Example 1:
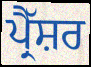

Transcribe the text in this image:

ਪ੍ਰੈੱਸ਼ਰ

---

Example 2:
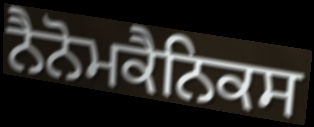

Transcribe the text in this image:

ਨੈਨੋਮਕੈਨਿਕਸ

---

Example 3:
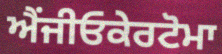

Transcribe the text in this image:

ਐਂਜੀਓਕੇਰਟੋਮਾ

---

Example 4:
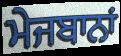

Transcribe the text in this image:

ਮੇਜਬਾਨਾਂ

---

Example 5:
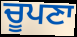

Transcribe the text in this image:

ਚੂਪਣਾ